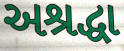
અશ્રદ્ધા